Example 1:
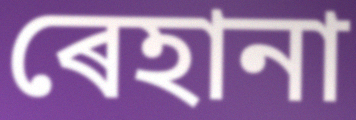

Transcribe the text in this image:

ৰেহানা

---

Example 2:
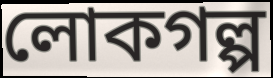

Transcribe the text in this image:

লোকগল্প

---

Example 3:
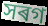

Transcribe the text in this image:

সৰগ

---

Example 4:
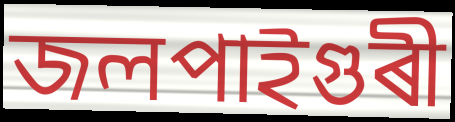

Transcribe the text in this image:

জলপাইগুৰী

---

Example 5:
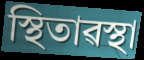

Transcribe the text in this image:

স্থিতাৱস্থা